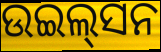
ଉଇଲ୍‌ସନ